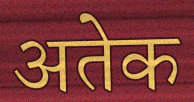
अतेक